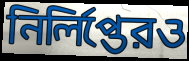
নির্লিপ্তেরও